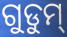
ଗୁଡୁମ୍